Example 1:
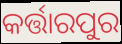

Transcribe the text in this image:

କର୍ତ୍ତାରପୁର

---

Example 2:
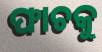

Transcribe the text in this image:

ଫାଚକୁ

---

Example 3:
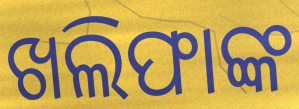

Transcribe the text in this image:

ଖଲିଫାଙ୍କ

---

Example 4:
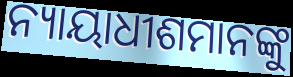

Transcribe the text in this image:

ନ୍ୟାୟାଧୀଶମାନଙ୍କୁ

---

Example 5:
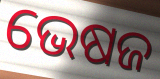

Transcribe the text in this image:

ଭେଷଜ